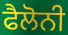
ਫੈਲੋਨੀ